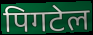
पिगटेल